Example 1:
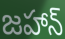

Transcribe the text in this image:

జహాన్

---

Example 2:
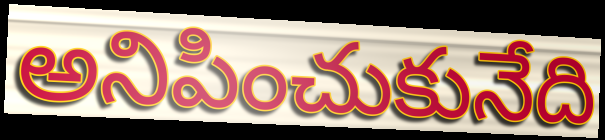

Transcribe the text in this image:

అనిపించుకునేది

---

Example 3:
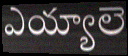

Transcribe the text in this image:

ఎయ్యాలె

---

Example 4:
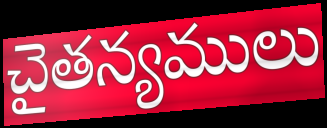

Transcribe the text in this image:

చైతన్యములు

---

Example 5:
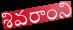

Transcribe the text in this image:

శివరాంని